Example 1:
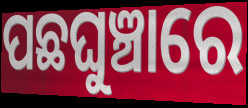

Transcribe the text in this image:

ପଛଘୁଞ୍ଚାରେ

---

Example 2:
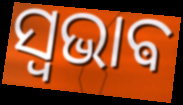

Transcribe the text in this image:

ସ୍ଵଭାଵ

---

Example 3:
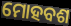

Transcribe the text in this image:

ମୋହବଶ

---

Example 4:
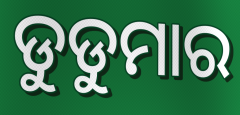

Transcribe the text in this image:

ଡୁଡୁମାର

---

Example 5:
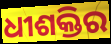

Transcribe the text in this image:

ଧୀଶକ୍ତିର